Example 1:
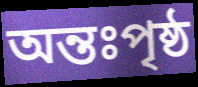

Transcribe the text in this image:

অন্তঃপৃষ্ঠ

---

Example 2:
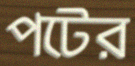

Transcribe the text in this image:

পটের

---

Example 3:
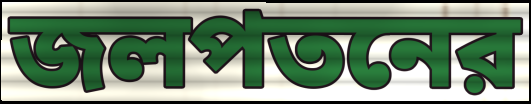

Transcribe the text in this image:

জলপতনের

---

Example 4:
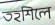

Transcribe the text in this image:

তহশিলে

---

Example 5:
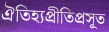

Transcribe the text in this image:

ঐতিহ্যপ্রীতিপ্রসূত